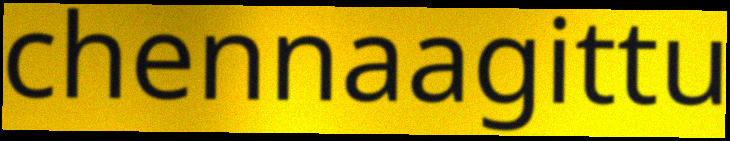
chennaagittu